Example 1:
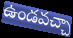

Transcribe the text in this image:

ఉండవచ్చా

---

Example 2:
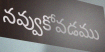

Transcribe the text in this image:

నవ్వుకోవడము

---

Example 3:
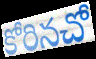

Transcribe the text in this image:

కోరినచో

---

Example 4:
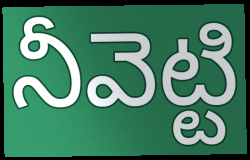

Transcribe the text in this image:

నీవెట్టి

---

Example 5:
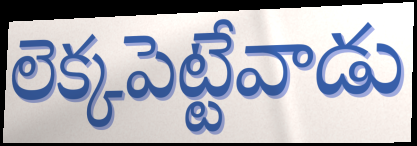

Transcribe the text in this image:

లెక్కపెట్టేవాడు